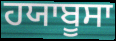
ਹਯਾਬੂਸਾ